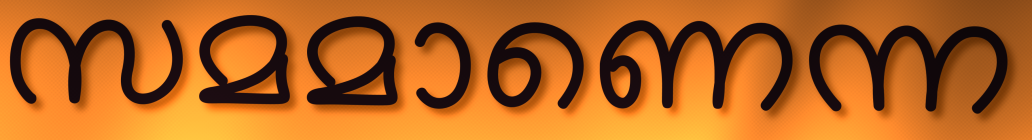
സമമാണെന്ന